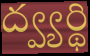
ద్వ్యర్థి